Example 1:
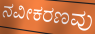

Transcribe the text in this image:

ನವೀಕರಣವು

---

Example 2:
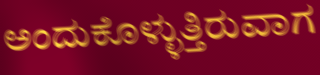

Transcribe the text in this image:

ಅಂದುಕೊಳ್ಳುತ್ತಿರುವಾಗ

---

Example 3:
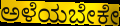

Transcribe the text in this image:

ಅಳೆಯಬೇಕೇ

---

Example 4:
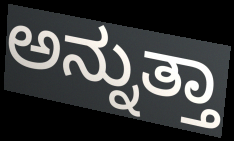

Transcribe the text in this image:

ಅನ್ನುತ್ತಾ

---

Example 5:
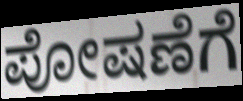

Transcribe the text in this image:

ಪೋಷಣೆಗೆ